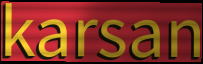
karsan